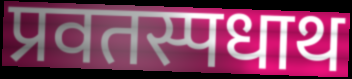
प्रवतस्पधाथ